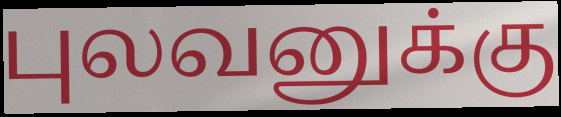
புலவனுக்கு